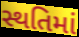
સ્થતિમાં